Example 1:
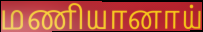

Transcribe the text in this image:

மணியானாய்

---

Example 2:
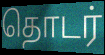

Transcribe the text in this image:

தொடர்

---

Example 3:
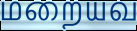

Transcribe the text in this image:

மறையவ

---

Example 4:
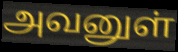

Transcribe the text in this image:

அவனுள்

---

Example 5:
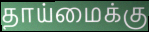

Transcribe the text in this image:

தாய்மைக்கு